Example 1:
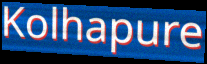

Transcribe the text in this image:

Kolhapure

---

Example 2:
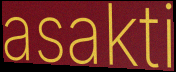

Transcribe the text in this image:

asakti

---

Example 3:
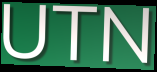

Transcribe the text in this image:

UTN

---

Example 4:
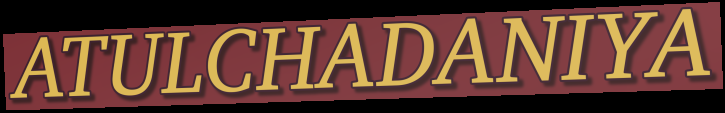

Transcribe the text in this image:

ATULCHADANIYA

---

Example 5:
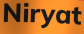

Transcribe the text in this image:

Niryat